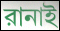
রানাই